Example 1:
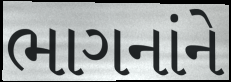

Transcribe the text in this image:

ભાગનાંને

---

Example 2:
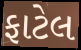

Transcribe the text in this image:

ફાટેલ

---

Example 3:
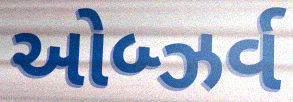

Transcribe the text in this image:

ઓબ્ઝર્વ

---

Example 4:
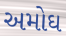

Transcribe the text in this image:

અમોઘ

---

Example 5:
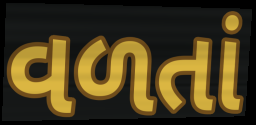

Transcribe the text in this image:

વળતાં